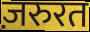
ज़रुरत